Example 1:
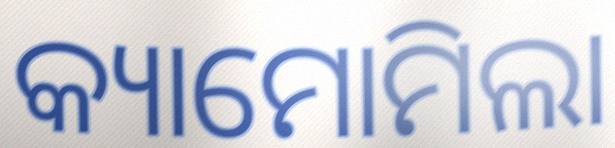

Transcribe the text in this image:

କ୍ୟାମୋମିଲା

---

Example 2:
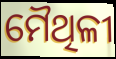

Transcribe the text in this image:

ମୈଥିଳୀ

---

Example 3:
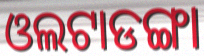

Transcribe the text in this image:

ଓଲଟାଡଙ୍ଗା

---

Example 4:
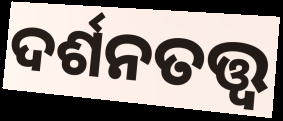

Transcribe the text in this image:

ଦର୍ଶନତତ୍ତ୍ଵ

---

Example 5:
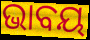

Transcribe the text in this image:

ଭାବୟ